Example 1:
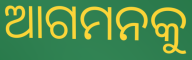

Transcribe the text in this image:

ଆଗମନକୁ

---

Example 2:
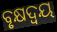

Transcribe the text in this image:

ବୃକ୍ଷଦ୍ୱୟ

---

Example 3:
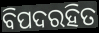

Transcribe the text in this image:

ବିପଦରହିତ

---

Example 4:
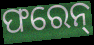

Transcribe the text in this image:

ଫରେନ୍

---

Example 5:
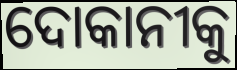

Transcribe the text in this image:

ଦୋକାନୀକୁ